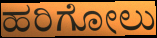
ಹರಿಗೋಲು